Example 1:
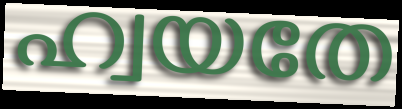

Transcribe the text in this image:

ഹ്വയതേ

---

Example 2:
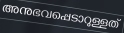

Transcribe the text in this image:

അനുഭവപ്പെടാറുള്ളത്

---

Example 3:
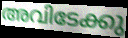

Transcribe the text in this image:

അവിടേക്കു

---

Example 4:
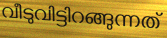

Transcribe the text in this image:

വീടുവിട്ടിറങ്ങുന്നത്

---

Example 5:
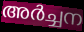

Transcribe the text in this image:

അർച്ചന